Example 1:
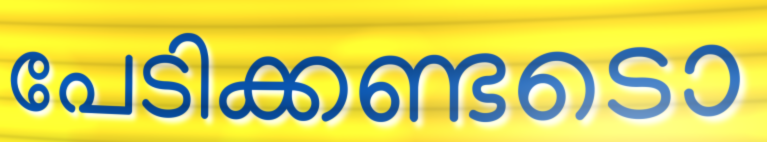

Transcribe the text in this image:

പേടിക്കണ്ടടൊ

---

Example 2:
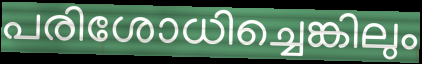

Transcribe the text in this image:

പരിശോധിച്ചെങ്കിലും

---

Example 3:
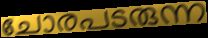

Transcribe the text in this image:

ചോരപടരുന്ന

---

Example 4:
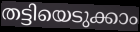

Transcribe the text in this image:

തട്ടിയെടുക്കാം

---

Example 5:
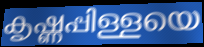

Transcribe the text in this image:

കൃഷ്ണപ്പിള്ളയെ